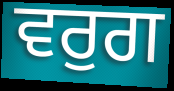
ਵਰੁਗ